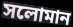
সলোমান